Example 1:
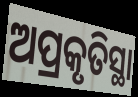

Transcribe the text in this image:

ଅପ୍ରକୃତିସ୍ଥା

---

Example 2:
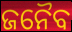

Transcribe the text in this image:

ଜନୈବ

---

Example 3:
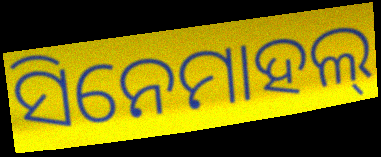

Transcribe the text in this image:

ସିନେମାହଲ୍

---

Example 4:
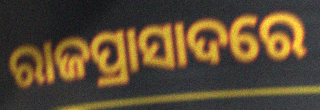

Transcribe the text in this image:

ରାଜପ୍ରାସାଦରେ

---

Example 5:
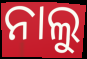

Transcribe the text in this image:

ନାଲୁ